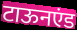
टाऊनएंड